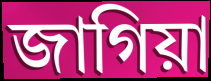
জাগিয়া